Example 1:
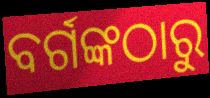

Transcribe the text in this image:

ବର୍ଗଙ୍କଠାରୁ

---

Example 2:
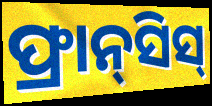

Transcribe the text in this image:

ଫ୍ରାନ୍‌ସିସ୍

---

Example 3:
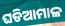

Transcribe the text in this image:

ଘଡିଆମାଳ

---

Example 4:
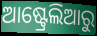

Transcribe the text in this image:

ଆଷ୍ଟ୍ରେଲିଆରୁ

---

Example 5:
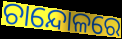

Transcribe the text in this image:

ଚାନ୍ଦୋଳରେ